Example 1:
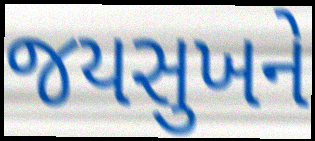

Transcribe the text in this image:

જયસુખને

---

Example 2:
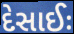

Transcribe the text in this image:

દેસાઈઃ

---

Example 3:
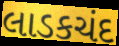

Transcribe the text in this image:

લાડકચંદ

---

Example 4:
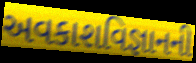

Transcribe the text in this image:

અવકાશવિજ્ઞાનની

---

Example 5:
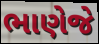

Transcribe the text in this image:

ભાણેજે